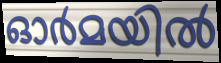
ഓർമയിൽ